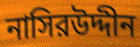
নাসিরউদ্দীন